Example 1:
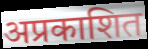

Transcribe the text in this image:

अप्रकाशित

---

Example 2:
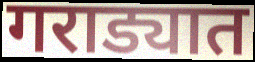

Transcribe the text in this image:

गराड्यात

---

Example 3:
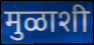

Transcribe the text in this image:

मुळाशी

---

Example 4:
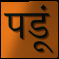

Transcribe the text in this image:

पडूं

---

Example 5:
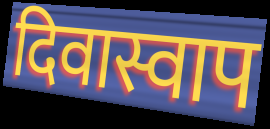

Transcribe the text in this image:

दिवास्वाप